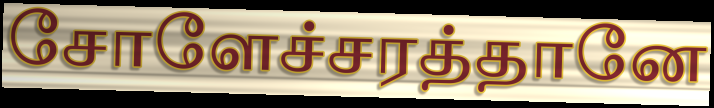
சோளேச்சரத்தானே